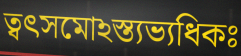
ত্বৎসমোঽস্ত্যভ্যধিকঃ